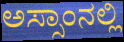
ಅಸ್ಸಾಂನಲ್ಲಿ